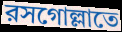
রসগোল্লাতে